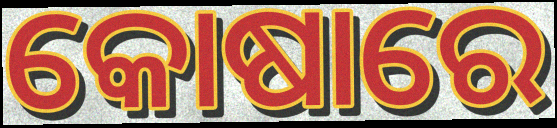
କୋଷାରେ